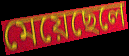
মেয়েছেলে